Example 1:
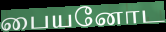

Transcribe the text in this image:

பையனோட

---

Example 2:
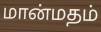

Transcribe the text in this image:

மான்மதம்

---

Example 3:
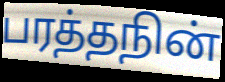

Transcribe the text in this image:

பரத்தநின்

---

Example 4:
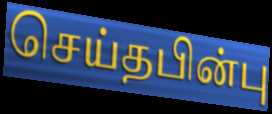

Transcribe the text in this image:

செய்தபின்பு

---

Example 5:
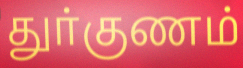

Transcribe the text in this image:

துர்குணம்